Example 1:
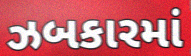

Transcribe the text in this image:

ઝબકારમાં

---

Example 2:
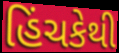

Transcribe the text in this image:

હિંચકેથી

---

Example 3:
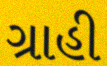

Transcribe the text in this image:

ગ્રાહી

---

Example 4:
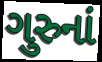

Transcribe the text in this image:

ગુરુનાં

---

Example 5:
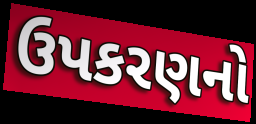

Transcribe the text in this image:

ઉપકરણનો